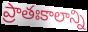
ప్రాతఃకాలాన్ని